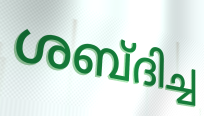
ശബ്ദിച്ച